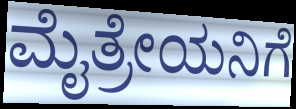
ಮೈತ್ರೇಯನಿಗೆ